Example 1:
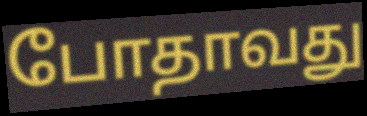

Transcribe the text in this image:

போதாவது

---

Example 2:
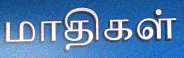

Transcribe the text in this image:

மாதிகள்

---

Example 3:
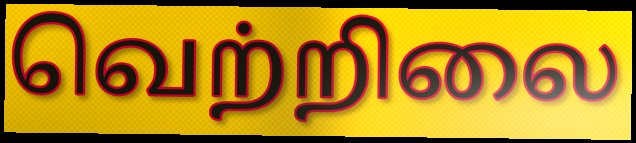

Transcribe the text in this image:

வெற்றிலை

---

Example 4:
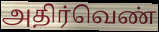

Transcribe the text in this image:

அதிர்வெண்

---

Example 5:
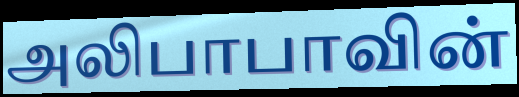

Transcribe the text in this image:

அலிபாபாவின்